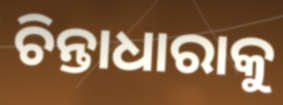
ଚିନ୍ତାଧାରାକୁ